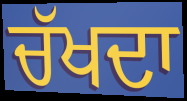
ਚੱਖਦਾ